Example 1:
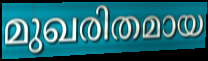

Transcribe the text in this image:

മുഖരിതമായ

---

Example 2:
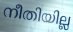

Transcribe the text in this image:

നീതിയില്ല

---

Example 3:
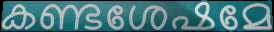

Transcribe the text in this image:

കണ്ടശേഷമേ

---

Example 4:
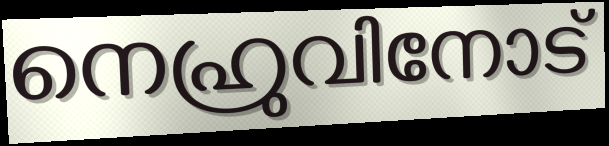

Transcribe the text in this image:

നെഹ്രുവിനോട്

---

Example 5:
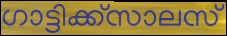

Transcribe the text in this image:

ഗാട്ടിക്ക്സാലസ്